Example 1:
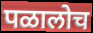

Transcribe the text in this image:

पळालोच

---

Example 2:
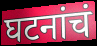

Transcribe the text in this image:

घटनांचं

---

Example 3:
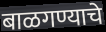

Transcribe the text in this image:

बाळगण्याचे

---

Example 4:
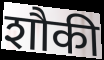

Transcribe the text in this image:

शौकी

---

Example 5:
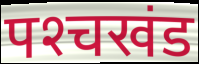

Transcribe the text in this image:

पश्चखंड